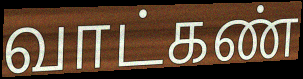
வாட்கண்